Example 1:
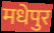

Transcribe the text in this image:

मधेपुर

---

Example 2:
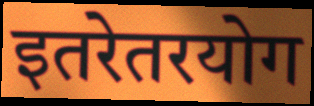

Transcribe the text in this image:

इतरेतरयोग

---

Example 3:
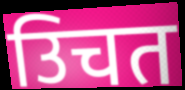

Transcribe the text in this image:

उिचत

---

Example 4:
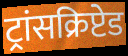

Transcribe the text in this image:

ट्रांसक्रिप्टेड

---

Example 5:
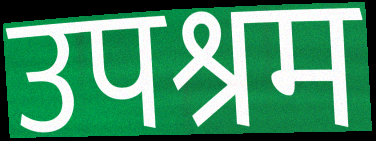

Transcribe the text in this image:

उपश्रम